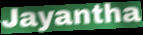
Jayantha